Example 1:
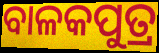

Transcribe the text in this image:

ବାଳକପୁତ୍ର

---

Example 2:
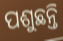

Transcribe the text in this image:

ପଶୁଛନ୍ତି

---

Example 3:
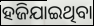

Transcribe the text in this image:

ହଜିଯାଇଥିବା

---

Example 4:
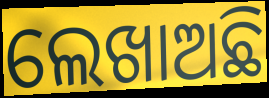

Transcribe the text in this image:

ଲେଖାଅଛି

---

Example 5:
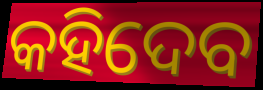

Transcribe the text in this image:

କହିଦେବ